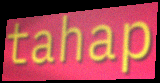
tahap